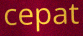
cepat